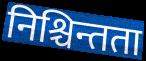
निश्चिन्तता